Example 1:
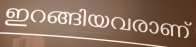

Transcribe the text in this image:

ഇറങ്ങിയവരാണ്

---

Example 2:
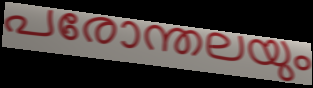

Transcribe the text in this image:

പരോന്തലയും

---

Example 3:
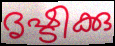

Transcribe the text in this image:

ദൃഷ്ടിക്കു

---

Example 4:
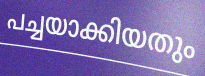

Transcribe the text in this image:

പച്ചയാക്കിയതും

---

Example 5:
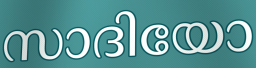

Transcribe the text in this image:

സാദിയോ